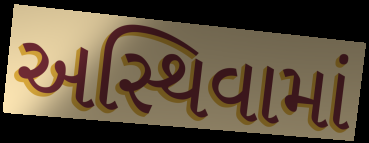
અસ્થિવામાં